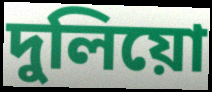
দুলিয়ো